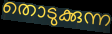
തൊടുക്കുന്ന